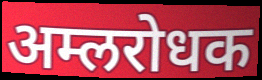
अम्लरोधक